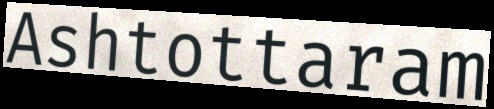
Ashtottaram